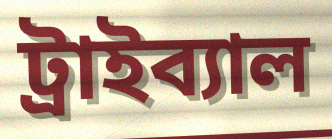
ট্রাইব্যাল